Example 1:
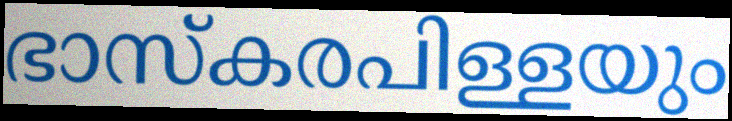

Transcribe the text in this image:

ഭാസ്കരപിള്ളയും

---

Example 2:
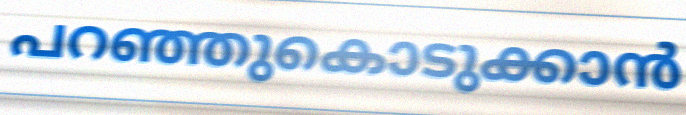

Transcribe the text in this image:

പറഞ്ഞുകൊടുക്കാൻ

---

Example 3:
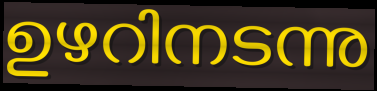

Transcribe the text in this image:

ഉഴറിനടന്നു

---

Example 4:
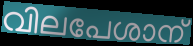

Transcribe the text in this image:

വിലപേശാന്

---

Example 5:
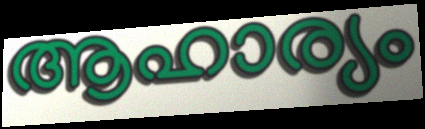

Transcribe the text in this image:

ആഹാര്യം